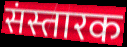
संस्तारक